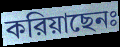
করিয়াছেনঃ